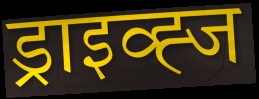
ड्राइव्ह्ज